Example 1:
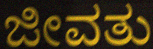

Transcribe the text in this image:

ಜೀವತು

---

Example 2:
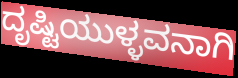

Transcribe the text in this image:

ದೃಷ್ಟಿಯುಳ್ಳವನಾಗಿ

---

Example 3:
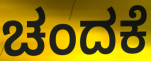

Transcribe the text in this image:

ಚಂದಕೆ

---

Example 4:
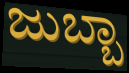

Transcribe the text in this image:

ಜುಬ್ಬಾ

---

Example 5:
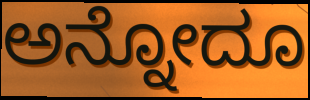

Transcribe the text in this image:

ಅನ್ನೋದೂ